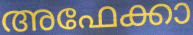
അഫേക്കാ